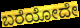
ಬರೆಯೋದೇ